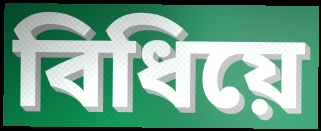
বিধিয়ে